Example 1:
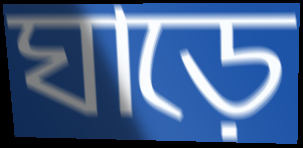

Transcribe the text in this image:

ঘাড়ে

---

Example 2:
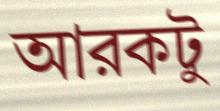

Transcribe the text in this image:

আরকটু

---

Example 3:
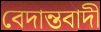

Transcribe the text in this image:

বেদান্তবাদী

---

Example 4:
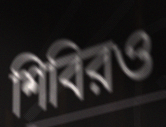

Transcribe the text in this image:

শিবিরও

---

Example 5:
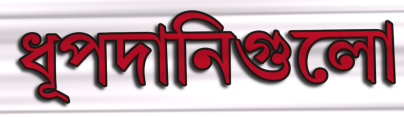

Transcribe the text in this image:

ধূপদানিগুলো